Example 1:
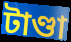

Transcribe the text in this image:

টাণ্ডা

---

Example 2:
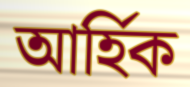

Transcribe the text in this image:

আৰ্হিক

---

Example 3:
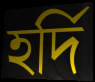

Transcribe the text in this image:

হৰ্দি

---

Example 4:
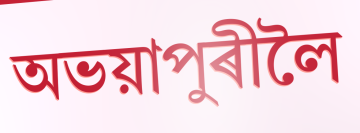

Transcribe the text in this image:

অভয়াপুৰীলৈ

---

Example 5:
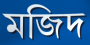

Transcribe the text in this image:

মজিদ